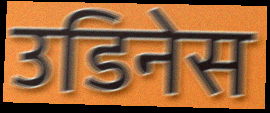
उडिनेस